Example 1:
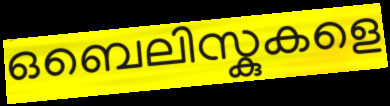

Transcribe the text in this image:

ഒബെലിസ്കുകളെ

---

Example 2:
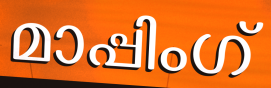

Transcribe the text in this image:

മാപ്പിംഗ്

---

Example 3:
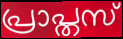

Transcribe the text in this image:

പ്രാപ്തസ്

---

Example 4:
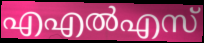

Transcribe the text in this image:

എഎൽഎസ്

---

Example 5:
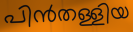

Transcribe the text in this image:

പിൻതള്ളിയ